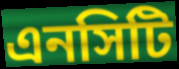
এনসিটি